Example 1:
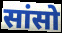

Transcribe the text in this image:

सांसो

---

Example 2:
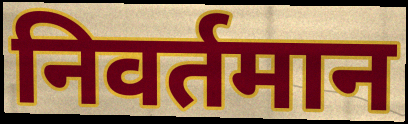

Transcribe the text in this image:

निवर्तमान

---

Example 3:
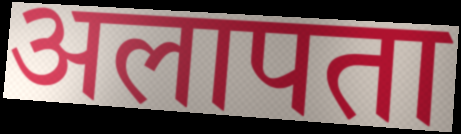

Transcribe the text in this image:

अलापता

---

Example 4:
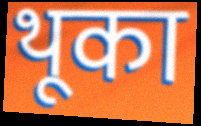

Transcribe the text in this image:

थूका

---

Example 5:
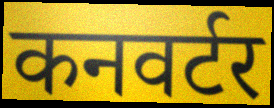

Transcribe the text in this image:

कनवर्टर